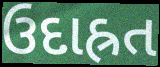
ઉદાહ્રત